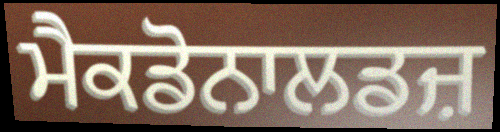
ਮੈਕਡੋਨਾਲਡਜ਼